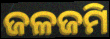
ଜଳଜମି